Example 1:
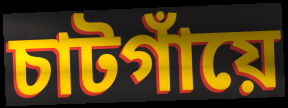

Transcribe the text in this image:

চাটগাঁয়ে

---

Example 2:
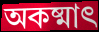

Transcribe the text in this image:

অকষ্মাৎ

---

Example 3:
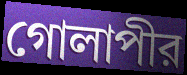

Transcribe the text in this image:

গোলাপীর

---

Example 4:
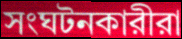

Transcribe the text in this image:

সংঘটনকারীরা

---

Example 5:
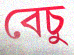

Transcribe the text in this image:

বেচু